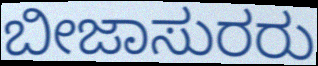
ಬೀಜಾಸುರರು